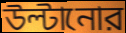
উল্টানোর